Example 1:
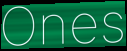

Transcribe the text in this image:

Ones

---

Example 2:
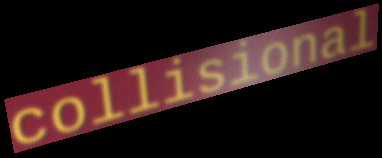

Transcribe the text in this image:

collisional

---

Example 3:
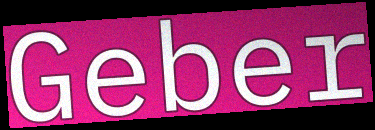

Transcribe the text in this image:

Geber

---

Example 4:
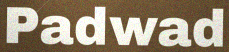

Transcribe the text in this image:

Padwad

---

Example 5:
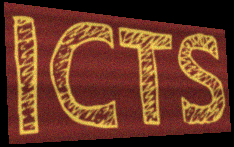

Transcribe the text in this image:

ICTS